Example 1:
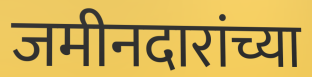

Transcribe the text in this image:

जमीनदारांच्या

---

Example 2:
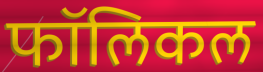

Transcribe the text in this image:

फॉलिकल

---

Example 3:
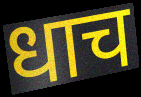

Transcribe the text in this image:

धाच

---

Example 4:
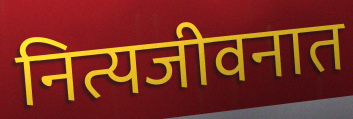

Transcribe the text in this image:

नित्यजीवनात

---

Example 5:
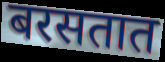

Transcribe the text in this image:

बरसतात